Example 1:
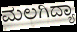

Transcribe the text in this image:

ಮಲಗಿದ್ಯಾ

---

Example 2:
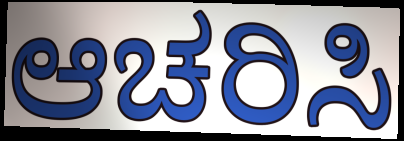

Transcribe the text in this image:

ಆಚರಿಸಿ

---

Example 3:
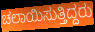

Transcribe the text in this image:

ಚಲಾಯಿಸುತ್ತಿದ್ದರು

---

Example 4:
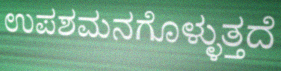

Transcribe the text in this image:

ಉಪಶಮನಗೊಳ್ಳುತ್ತದೆ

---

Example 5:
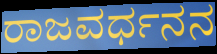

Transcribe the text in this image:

ರಾಜವರ್ಧನನ